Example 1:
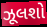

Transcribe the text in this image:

ઝૂલશો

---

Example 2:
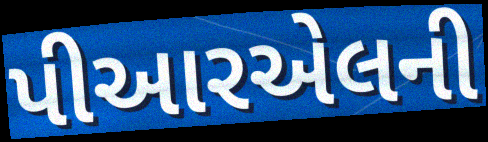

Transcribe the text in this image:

પીઆરએલની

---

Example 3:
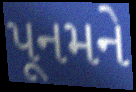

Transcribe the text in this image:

પૂનમને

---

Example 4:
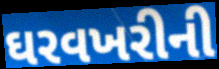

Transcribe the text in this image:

ઘરવખરીની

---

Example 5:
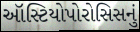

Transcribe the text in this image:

ઑસ્ટિયોપોરોસિસનું